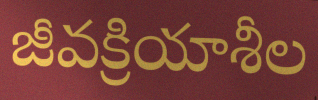
జీవక్రియాశీల